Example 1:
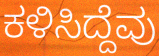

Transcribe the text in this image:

ಕಳಿಸಿದ್ದೆವು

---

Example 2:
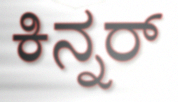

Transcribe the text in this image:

ಕಿನ್ನರ್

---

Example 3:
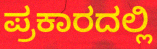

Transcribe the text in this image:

ಪ್ರಕಾರದಲ್ಲಿ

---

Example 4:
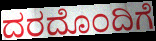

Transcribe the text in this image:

ದರದೊಂದಿಗೆ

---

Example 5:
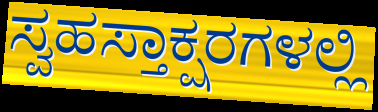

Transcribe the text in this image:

ಸ್ವಹಸ್ತಾಕ್ಷರಗಳಲ್ಲಿ